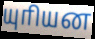
யுரியன